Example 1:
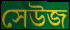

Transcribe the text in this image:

সেউজ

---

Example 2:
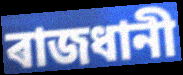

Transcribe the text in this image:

ৰাজধানী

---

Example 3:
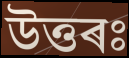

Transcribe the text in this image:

উত্তৰঃ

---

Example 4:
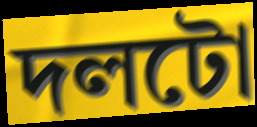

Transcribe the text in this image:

দলটো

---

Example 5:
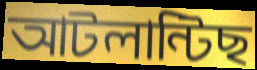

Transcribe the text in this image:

আটলান্টিছ